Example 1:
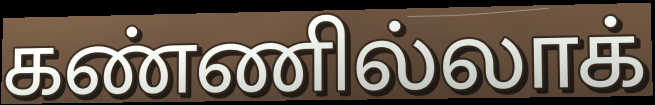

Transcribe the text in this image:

கண்ணில்லாக்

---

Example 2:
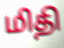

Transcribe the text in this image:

மிதி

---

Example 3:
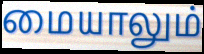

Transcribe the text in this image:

மையாலும்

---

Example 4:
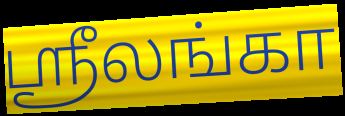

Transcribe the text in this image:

ஶ்ரீலங்கா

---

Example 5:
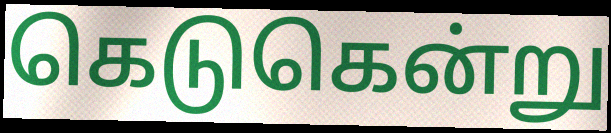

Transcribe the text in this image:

கெடுகென்று